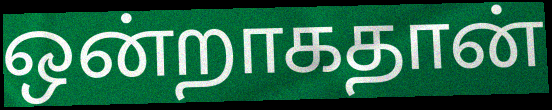
ஒன்றாகதான்